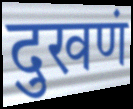
दुखणं